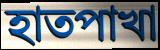
হাতপাখা